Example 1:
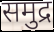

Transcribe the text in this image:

समुद्र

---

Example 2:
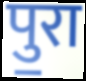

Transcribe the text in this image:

पु॒रा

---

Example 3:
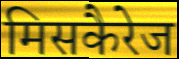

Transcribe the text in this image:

मिसकैरेज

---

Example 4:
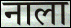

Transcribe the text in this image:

नाला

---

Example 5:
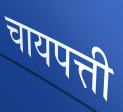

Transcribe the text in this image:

चायपत्ती